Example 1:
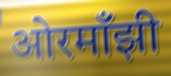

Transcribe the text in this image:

ओरमाँझी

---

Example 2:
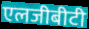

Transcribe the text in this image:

एलजीबीटी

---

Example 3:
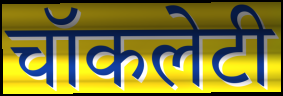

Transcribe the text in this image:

चॉकलेटी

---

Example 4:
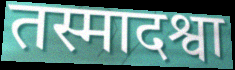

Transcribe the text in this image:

तस्मादश्वा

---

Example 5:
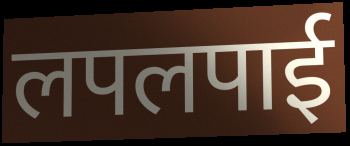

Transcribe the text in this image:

लपलपाई